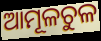
ଆମୂଳଚୁଳ